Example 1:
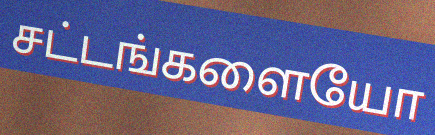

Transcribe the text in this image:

சட்டங்களையோ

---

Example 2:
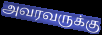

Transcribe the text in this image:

அவரவருக்கு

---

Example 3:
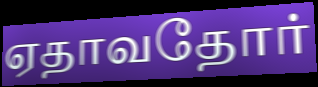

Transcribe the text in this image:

ஏதாவதோர்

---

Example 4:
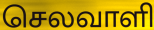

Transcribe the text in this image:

செலவாளி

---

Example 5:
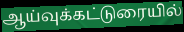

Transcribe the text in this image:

ஆய்வுக்கட்டுரையில்